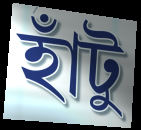
হাঁটু